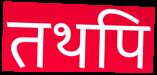
तथपि